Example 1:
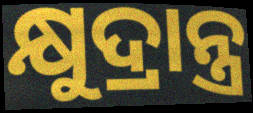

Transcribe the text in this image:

କ୍ଷୁଦ୍ରାନ୍ତ୍ର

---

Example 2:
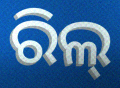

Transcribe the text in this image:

ରିଲ୍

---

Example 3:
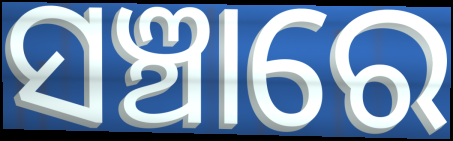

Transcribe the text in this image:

ସଞ୍ଚାରେ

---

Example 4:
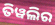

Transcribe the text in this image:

ତିୱଲିର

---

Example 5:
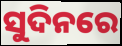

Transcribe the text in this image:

ସୁଦିନରେ